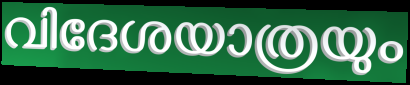
വിദേശയാത്രയും